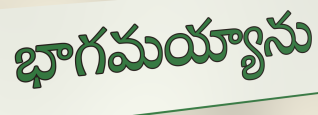
భాగమయ్యాను